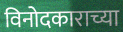
विनोदकाराच्या